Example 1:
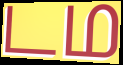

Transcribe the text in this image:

டம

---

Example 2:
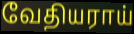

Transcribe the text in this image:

வேதியராய்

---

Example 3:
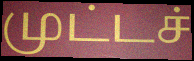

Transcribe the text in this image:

முட்டச்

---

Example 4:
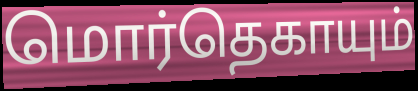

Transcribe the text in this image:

மொர்தெகாயும்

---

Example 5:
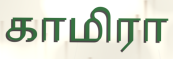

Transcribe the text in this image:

காமிரா